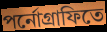
পর্নোগ্রাফিতে